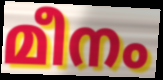
മീനം